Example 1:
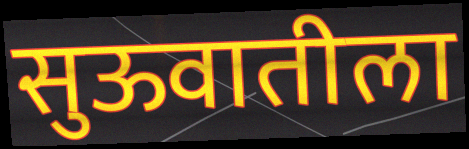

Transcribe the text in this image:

सुऊवातीला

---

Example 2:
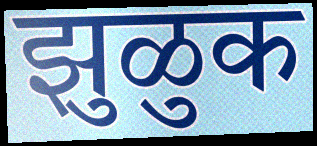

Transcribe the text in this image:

झुळुक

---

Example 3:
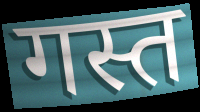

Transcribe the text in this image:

गस्त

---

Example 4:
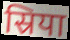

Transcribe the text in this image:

स्रिया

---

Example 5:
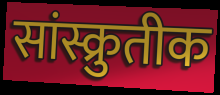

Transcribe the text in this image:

सांस्क्रुतीक